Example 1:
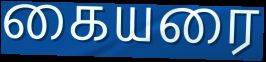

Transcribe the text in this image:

கையரை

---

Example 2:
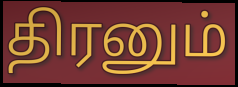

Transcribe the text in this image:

திரனும்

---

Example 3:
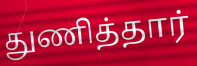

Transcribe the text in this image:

துணித்தார்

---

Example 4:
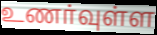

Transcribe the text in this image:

உணர்வுள்ள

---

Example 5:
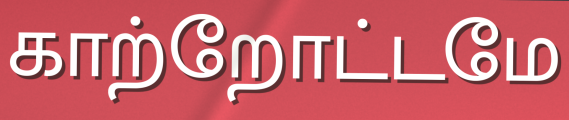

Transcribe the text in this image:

காற்றோட்டமே